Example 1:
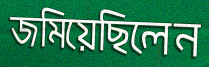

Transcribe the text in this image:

জমিয়েছিলেন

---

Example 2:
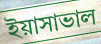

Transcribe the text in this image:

ইয়াসাভাল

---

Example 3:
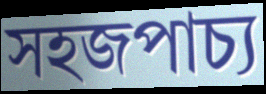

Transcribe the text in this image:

সহজপাচ্য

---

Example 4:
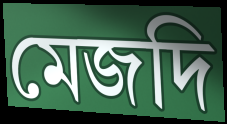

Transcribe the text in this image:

মেজদি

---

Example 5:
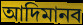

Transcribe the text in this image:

আদিমানব